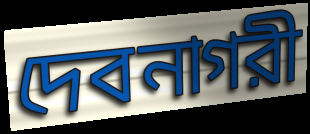
দেবনাগরী